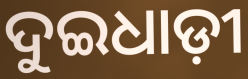
ଦୁଇଧାଡ଼ୀ